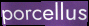
porcellus